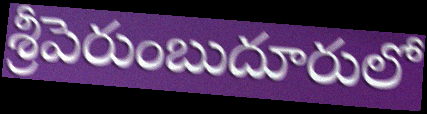
శ్రీపెరుంబుదూరులో